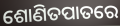
ଶୋଣିତପାତରେ